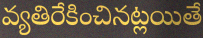
వ్యతిరేకించినట్లయితే